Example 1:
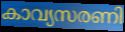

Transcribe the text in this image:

കാവ്യസരണി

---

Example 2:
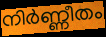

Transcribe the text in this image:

നിർണ്ണീതം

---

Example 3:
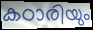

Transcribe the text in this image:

കഠാരിയും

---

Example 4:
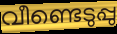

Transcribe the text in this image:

വീണ്ടെടുപ്പു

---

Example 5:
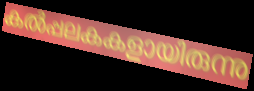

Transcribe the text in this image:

കൽപ്പലകകളായിരുന്നു